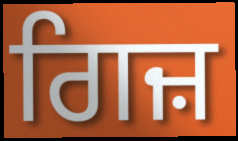
ਗਿਜ਼